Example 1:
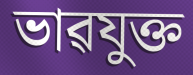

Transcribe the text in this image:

ভাৱযুক্ত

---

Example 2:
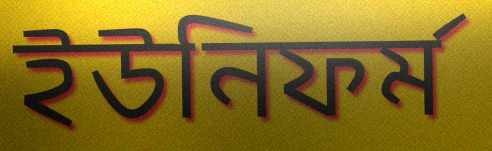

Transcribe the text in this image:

ইউনিফৰ্ম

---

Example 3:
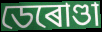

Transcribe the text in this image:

ডেৰোণ্ডা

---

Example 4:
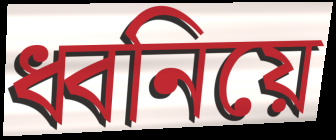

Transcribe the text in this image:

ধ্বনিয়ে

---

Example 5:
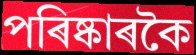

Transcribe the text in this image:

পৰিষ্কাৰকৈ